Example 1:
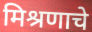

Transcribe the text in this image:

मिश्रणाचे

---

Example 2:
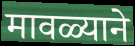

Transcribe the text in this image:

मावळ्याने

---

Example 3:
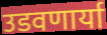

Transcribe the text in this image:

उडवणार्या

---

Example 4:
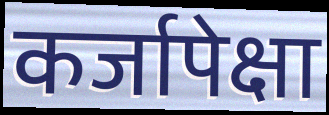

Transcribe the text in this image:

कर्जापेक्षा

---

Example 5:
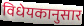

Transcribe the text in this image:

विधेयकानुसार